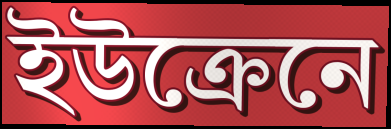
ইউক্রেনে